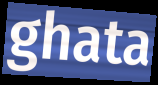
ghata